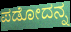
ಪಡೋದನ್ನ